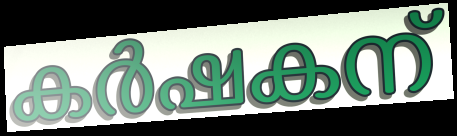
കർഷകന്